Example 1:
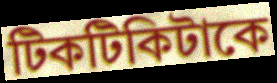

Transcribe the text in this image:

টিকটিকিটাকে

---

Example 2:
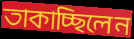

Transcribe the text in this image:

তাকাচ্ছিলেন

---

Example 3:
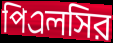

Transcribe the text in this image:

পিএলসির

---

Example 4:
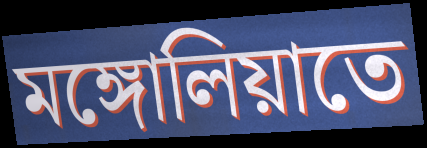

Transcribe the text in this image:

মঙ্গোলিয়াতে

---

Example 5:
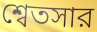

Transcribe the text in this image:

শ্বেতসার